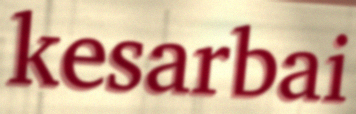
kesarbai